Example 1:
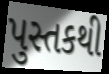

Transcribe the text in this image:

પુસ્તકથી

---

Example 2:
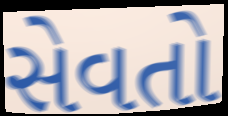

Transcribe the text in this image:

સેવતો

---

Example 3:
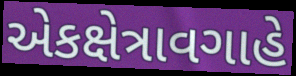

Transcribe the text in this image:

એકક્ષેત્રાવગાહે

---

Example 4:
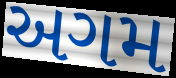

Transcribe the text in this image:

અગમ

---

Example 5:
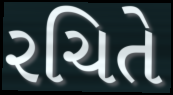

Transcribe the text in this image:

રચિતે